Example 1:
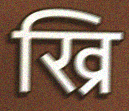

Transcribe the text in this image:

ख्रि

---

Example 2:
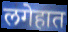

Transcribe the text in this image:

लगेहात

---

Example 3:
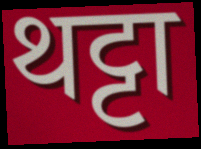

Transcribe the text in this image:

थट्टा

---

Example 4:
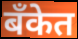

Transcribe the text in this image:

बॅंकेत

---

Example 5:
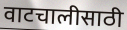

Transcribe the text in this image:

वाटचालीसाठी